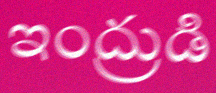
ఇంద్రుడి